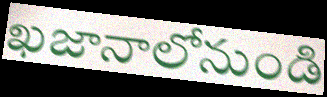
ఖజానాలోనుండి